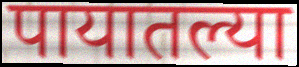
पायातल्या